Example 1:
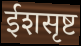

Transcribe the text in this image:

ईशसृष्ट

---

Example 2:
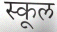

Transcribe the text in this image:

स्कूल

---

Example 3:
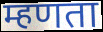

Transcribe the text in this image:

म्हणता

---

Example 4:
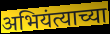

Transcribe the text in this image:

अभियंत्याच्या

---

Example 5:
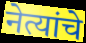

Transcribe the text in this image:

नेत्यांचे